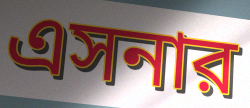
এসনার